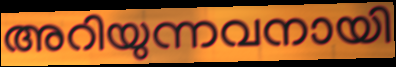
അറിയുന്നവനായി